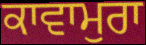
ਕਾਵਾਮੁਰਾ